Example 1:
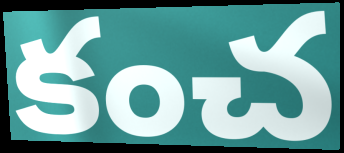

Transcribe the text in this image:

కంచ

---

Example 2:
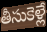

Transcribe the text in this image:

తీసుకెళ్లే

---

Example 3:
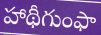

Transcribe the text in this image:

హాథీగుంఫా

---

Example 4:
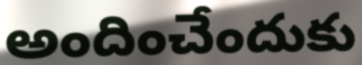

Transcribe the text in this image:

అందించేందుకు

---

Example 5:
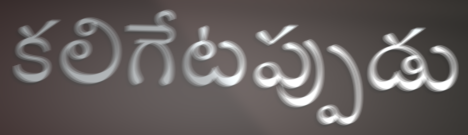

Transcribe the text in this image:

కలిగేటప్పుడు